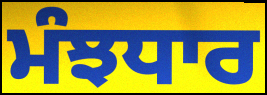
ਮੰਝਧਾਰ